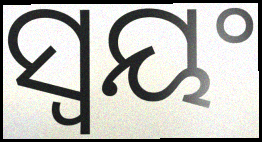
ସ୍ଵୟଂ